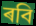
ৰবি